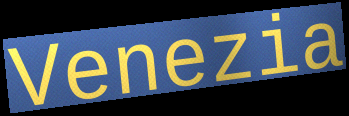
Venezia